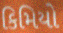
કિમિયો